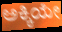
ಅಕ್ಕಿಯೇ